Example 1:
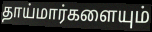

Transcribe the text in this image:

தாய்மார்களையும்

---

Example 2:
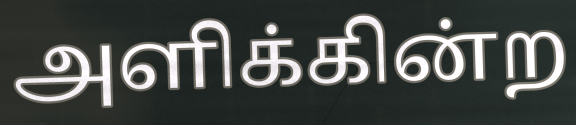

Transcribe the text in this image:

அளிக்கின்ற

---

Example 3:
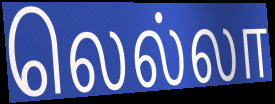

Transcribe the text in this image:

லெல்லா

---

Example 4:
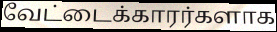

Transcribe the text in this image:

வேட்டைக்காரர்களாக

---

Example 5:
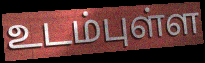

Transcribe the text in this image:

உடம்புள்ள